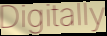
Digitally